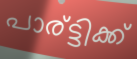
പാര്ട്ടിക്ക്